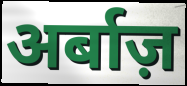
अर्बाज़